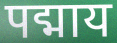
पद्माय